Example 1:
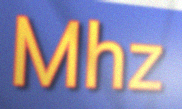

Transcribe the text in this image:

Mhz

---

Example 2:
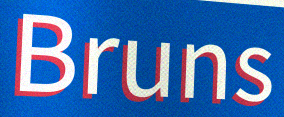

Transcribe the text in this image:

Bruns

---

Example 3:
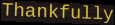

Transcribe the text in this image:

Thankfully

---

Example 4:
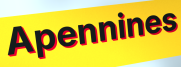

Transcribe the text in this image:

Apennines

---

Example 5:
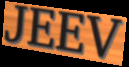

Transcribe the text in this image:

JEEV